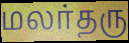
மலர்தரு